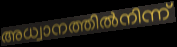
അധ്വാനത്തിൽനിന്ന്